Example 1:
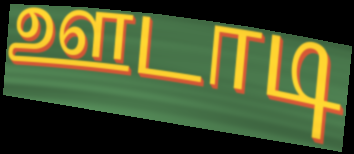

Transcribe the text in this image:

ஊடாடி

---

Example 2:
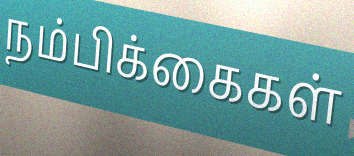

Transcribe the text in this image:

நம்பிக்கைகள்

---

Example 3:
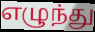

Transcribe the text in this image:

எழுந்து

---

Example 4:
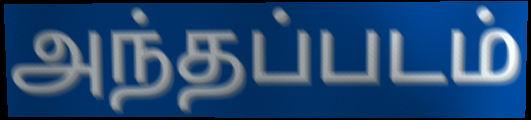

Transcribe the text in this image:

அந்தப்படம்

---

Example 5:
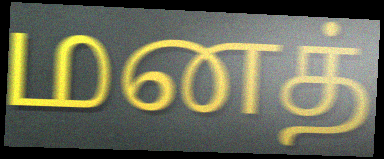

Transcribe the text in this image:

மனத்